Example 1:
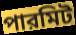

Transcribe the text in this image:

পারমিট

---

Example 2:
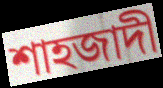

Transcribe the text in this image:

শাহজাদী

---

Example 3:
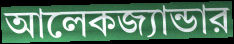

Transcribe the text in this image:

আলেকজ্যান্ডার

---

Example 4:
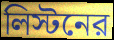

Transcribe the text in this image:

লিস্টনের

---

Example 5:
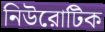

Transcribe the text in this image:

নিউরোটিক